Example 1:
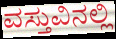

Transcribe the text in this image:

ವಸ್ತುವಿನಲ್ಲಿ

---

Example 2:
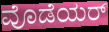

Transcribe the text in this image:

ವೊಡೆಯರ್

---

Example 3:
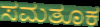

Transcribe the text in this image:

ಸಮತೂಕ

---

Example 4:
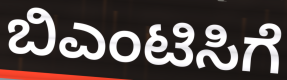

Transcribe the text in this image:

ಬಿಎಂಟಿಸಿಗೆ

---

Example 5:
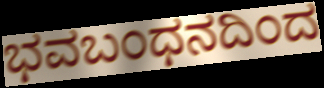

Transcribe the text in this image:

ಭವಬಂಧನದಿಂದ